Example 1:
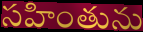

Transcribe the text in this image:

సహింతును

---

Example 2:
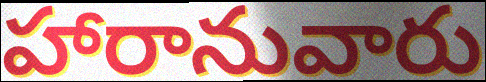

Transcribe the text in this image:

హారానువారు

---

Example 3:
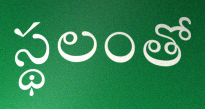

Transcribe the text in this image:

స్థలంతో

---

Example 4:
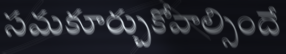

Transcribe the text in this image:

సమకూర్చుకోవాల్సిందే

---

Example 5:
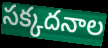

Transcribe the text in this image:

సక్కదనాల